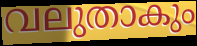
വലുതാകും